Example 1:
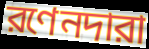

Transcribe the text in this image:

রণেনদারা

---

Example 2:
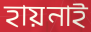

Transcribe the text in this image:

হায়নাই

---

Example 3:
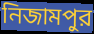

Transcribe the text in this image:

নিজামপুর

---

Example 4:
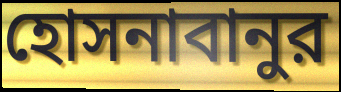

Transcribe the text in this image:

হোসনাবানুর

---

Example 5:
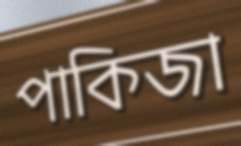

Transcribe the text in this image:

পাকিজা